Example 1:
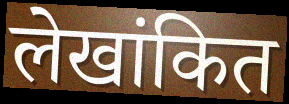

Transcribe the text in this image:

लेखांकित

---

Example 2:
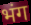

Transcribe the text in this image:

भंग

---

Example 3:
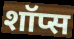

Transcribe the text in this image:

शॉप्स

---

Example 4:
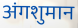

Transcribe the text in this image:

अंगशुमान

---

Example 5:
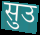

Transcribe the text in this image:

सुउ